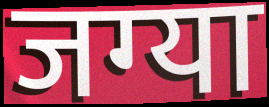
जग्या